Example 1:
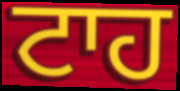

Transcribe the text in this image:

ਟਾਹ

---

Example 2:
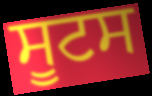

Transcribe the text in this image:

ਸੂਟਸ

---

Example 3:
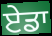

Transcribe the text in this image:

ਏਡਾ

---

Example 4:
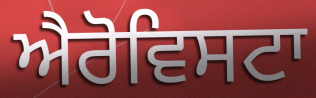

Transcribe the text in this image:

ਐਰੋਵਿਸਟਾ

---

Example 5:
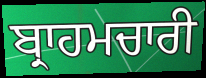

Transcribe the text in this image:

ਬ੍ਰਾਹਮਚਾਰੀ